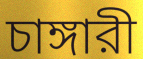
চাঙ্গারী